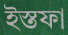
ইস্তফা